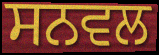
ਸਨਵਲ